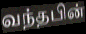
வந்தபின்